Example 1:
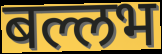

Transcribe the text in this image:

बल्लभ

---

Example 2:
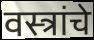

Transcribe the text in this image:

वस्त्रांचे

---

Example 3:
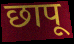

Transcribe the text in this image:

छापू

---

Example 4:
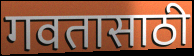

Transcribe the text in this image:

गवतासाठी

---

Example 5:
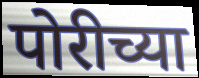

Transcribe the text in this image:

पोरीच्या